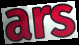
ars